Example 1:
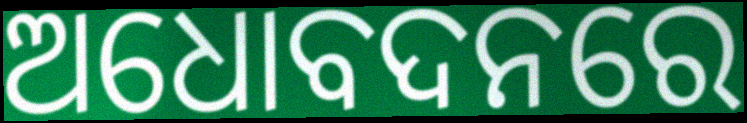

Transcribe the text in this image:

ଅଧୋବଦନରେ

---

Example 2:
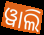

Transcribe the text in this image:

ୱାଲି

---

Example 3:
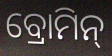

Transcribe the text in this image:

ବ୍ରୋମିନ୍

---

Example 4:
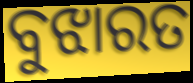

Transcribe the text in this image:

ବୁଝାରତ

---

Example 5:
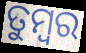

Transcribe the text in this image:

ତୁମ୍ବର